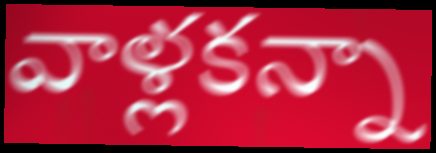
వాళ్లకన్నా